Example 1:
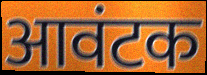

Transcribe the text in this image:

आवंटक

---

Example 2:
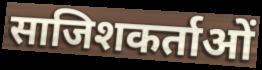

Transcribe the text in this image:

साजिशकर्ताओं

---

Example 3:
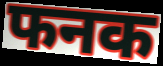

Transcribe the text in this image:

फनक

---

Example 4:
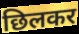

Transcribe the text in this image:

छिलकर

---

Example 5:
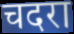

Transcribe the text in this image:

चदरा